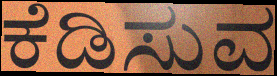
ಕೆಡಿಸುವ